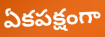
ఏకపక్షంగా